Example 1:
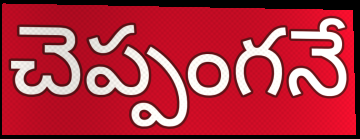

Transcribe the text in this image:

చెప్పంగనే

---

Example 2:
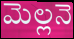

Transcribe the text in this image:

మెల్లనె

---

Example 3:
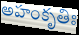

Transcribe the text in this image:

అహంకృతిః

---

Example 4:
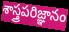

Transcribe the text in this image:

శాస్త్రపరిజ్ఞానం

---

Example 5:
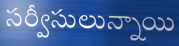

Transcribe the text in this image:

సర్వీసులున్నాయి